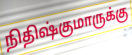
நிதிஷ்குமாருக்கு